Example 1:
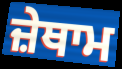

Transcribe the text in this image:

ਜ਼ੇਥਾਮ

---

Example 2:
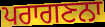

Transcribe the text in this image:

ਪਰਾਗਣਨਾ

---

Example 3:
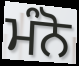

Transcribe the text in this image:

ਮੰਨੋ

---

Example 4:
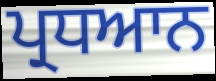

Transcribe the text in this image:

ਪ੍ਰਧਆਨ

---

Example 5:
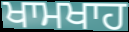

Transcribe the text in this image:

ਖਾਮਖਾਹ